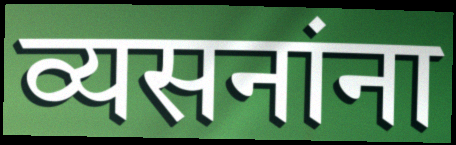
व्यसनांना